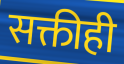
सक्तीही